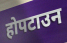
होपटाउन